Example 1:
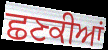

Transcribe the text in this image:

ਛਣਕੀਆਂ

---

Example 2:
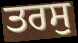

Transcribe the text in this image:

ਤਰਸੁ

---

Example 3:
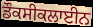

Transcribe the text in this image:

ਡੌਕਸੀਕਲਾਈਨ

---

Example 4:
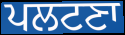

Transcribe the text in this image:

ਪਲਟਣਾ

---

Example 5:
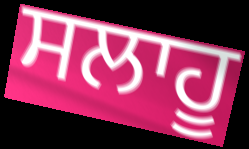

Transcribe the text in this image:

ਸਲਾਹੂ